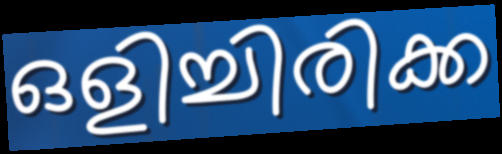
ഒളിച്ചിരിക്ക